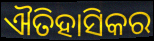
ଐତିହାସିକର